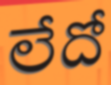
లేదో